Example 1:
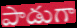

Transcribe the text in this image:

పాడుగా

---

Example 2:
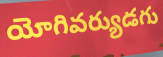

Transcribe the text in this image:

యోగివర్యుడగు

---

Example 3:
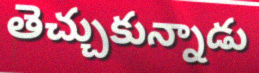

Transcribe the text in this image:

తెచ్చుకున్నాడు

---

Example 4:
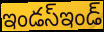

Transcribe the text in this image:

ఇండస్ఇండ్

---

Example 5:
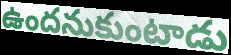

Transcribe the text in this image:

ఉందనుకుంటాడు